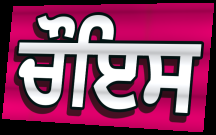
ਚੌਇਸ